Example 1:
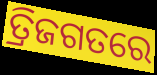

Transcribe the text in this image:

ତ୍ରିଜଗତରେ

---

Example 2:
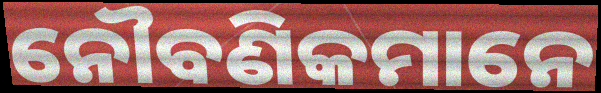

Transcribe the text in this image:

ନୌବଣିକମାନେ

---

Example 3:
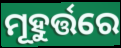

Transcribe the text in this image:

ମୂହୁର୍ତ୍ତରେ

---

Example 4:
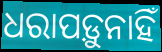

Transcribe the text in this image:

ଧରାପଡ଼ୁନାହିଁ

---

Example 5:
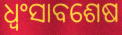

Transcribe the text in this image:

ଧ୍ଵଂସାବଶେଷ